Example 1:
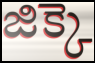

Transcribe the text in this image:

జిక్కె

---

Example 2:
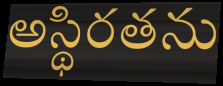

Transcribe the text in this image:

అస్థిరతను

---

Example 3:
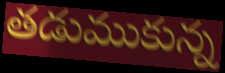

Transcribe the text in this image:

తడుముకున్న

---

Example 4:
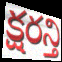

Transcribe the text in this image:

క్షరన్తి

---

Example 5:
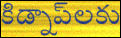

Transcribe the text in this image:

కిడ్నాప్‌లకు